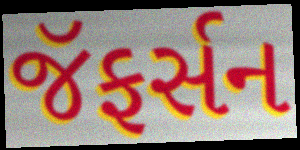
જૅફર્સન